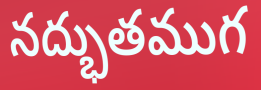
నద్భుతముగ